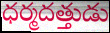
ధర్మదత్తుడు